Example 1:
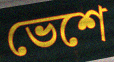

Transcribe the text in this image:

ভেশে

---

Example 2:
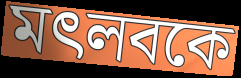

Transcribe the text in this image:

মৎলবকে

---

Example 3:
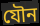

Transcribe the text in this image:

যৌন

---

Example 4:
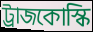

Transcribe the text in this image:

ট্রাজকোস্কি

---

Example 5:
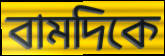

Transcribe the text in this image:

বামদিকে